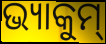
ଭ୍ୟାକୁମ୍